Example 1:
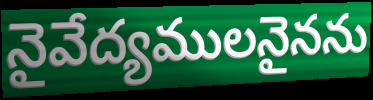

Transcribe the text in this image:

నైవేద్యములనైనను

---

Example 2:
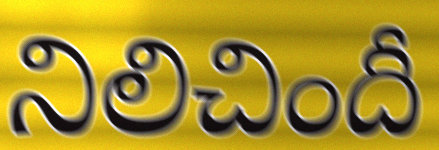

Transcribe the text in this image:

నిలిచిందీ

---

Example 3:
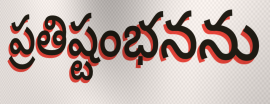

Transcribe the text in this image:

ప్రతిష్టంభనను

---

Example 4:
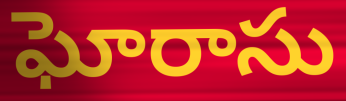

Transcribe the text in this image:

ఘోరాసు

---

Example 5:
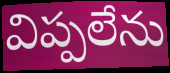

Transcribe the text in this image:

విప్పలేను